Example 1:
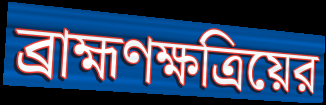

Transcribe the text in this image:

ব্রাহ্মণক্ষত্রিয়ের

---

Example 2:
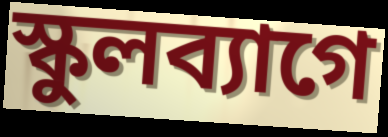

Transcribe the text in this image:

স্কুলব্যাগে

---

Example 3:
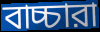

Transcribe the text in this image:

বাচ্চারা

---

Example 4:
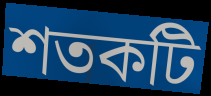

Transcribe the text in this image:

শতকটি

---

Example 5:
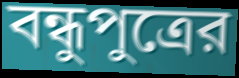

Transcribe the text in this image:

বন্ধুপুত্রের